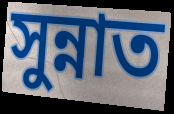
সুন্নাত